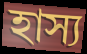
হাস্য